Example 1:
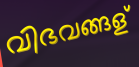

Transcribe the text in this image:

വിഭവങ്ങള്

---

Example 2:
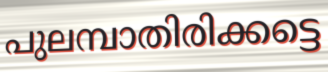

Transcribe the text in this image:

പുലമ്പാതിരിക്കട്ടെ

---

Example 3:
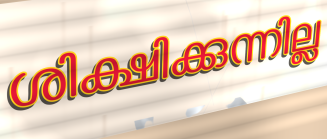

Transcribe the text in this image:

ശിക്ഷിക്കുന്നില്ല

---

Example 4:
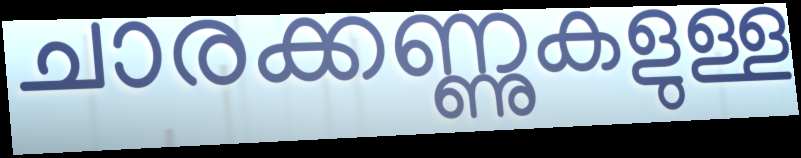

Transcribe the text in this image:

ചാരക്കണ്ണുകളുള്ള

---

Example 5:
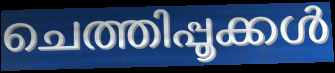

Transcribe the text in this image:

ചെത്തിപ്പൂക്കൾ